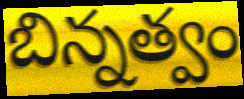
బిన్నత్వం